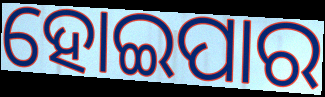
ହୋଇପାର